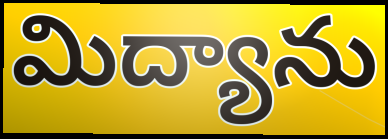
మిద్యాను